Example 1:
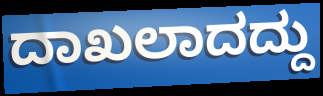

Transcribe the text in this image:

ದಾಖಲಾದದ್ದು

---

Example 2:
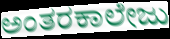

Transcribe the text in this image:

ಅಂತರಕಾಲೇಜು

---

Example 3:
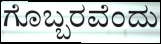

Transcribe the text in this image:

ಗೊಬ್ಬರವೆಂದು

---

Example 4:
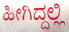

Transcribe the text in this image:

ಹೀಗಿದ್ದಲ್ಲಿ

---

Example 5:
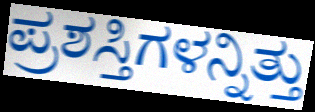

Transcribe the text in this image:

ಪ್ರಶಸ್ತಿಗಳನ್ನಿತ್ತು